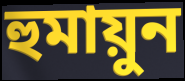
হুমায়ুন